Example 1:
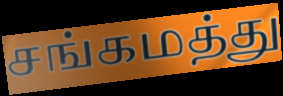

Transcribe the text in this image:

சங்கமத்து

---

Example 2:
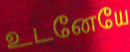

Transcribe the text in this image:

உடனேயே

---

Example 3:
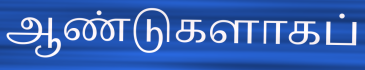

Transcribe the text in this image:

ஆண்டுகளாகப்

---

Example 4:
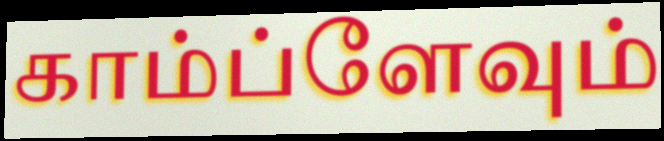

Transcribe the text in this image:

காம்ப்ளேவும்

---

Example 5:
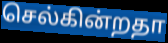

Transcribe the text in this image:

செல்கின்றதா